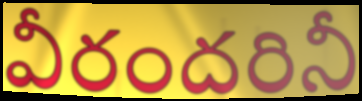
వీరందరినీ